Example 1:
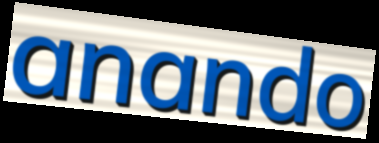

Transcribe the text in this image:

anando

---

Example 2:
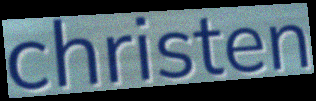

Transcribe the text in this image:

christen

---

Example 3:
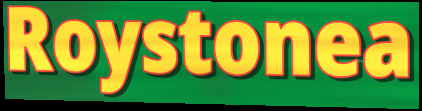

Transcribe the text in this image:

Roystonea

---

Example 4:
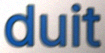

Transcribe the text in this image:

duit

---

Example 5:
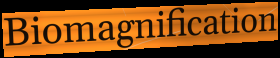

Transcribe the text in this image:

Biomagnification